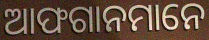
ଆଫଗାନମାନେ